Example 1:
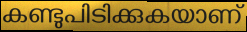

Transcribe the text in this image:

കണ്ടുപിടിക്കുകയാണ്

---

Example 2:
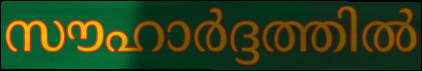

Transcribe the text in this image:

സൗഹാർദ്ദത്തിൽ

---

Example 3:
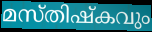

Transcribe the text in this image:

മസ്തിഷ്കവും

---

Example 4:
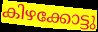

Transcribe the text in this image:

കിഴക്കോട്ടു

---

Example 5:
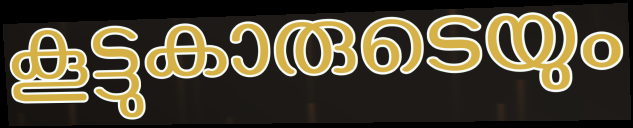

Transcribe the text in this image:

കൂട്ടുകാരുടെയും